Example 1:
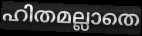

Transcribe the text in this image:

ഹിതമല്ലാതെ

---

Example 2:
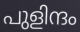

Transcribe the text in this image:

പുളിന്ദം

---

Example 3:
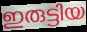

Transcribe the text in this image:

ഇരുട്ടിയ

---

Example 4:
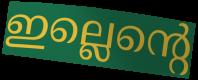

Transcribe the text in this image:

ഇല്ലെന്റെ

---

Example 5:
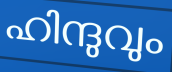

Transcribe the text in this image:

ഹിന്ദുവും